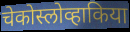
चेकोस्लोव्हाकिया